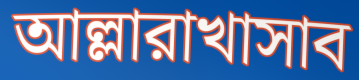
আল্লারাখাসাব